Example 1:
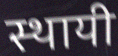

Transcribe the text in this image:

स्थायी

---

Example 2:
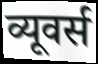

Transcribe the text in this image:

व्यूवर्स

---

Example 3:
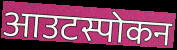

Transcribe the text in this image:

आउटस्पोकन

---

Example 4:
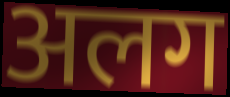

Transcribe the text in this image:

अलग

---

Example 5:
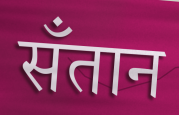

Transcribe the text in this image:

सँतान